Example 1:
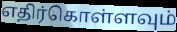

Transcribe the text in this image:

எதிர்கொள்ளவும்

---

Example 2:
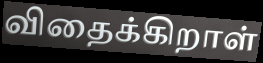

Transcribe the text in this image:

விதைக்கிறாள்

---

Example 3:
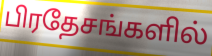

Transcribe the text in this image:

பிரதேசங்களில்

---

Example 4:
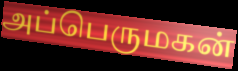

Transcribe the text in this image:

அப்பெருமகன்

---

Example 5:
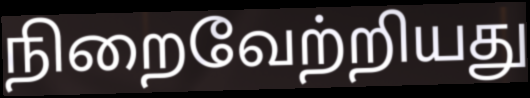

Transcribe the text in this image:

நிறைவேற்றியது